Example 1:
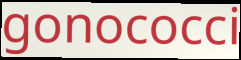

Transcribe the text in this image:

gonococci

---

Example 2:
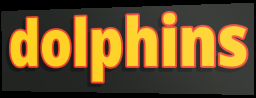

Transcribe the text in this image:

dolphins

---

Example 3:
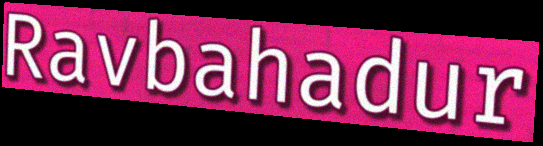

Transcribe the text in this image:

Ravbahadur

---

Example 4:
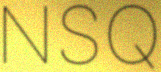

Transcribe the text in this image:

NSQ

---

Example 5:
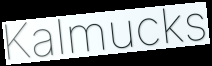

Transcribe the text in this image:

Kalmucks